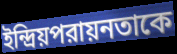
ইন্দ্রিয়পরায়নতাকে